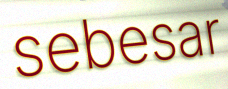
sebesar